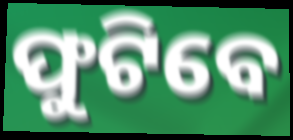
ଫୁଟିବେ